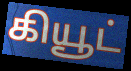
கியூட்